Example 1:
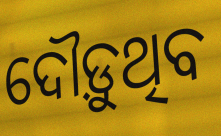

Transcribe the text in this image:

ଦୌଡ଼ୁଥିବ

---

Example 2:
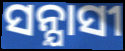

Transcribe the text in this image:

ସନ୍ଯାସୀ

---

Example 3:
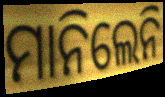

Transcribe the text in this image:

ମାନିଲେନି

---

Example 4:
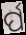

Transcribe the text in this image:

ର୍ପ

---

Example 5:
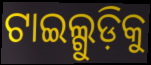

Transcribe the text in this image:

ଟାଇଲ୍ଗୁଡ଼ିକୁ